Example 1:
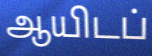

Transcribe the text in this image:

ஆயிடப்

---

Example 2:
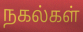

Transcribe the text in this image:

நகல்கள்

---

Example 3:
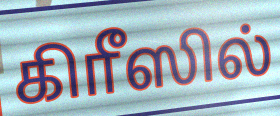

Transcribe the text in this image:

கிரீஸில்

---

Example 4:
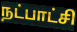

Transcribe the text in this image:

நட்பாட்சி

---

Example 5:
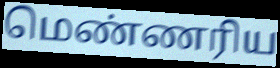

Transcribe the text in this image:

மெண்ணரிய